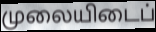
முலையிடைப்